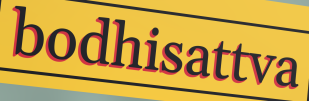
bodhisattva